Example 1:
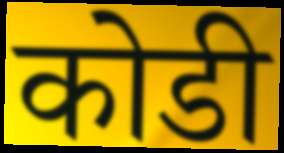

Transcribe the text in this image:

कोडी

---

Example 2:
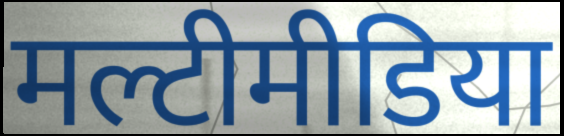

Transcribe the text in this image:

मल्टीमीडिया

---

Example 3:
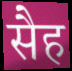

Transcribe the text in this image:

सैह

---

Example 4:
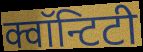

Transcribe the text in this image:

क्वॉन्टिटी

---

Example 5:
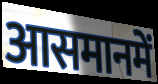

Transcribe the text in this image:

आसमानमें